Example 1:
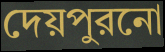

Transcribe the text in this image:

দেয়পুরনো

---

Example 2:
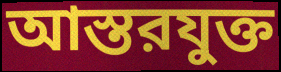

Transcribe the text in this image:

আস্তরযুক্ত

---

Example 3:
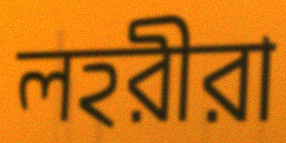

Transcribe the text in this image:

লহরীরা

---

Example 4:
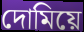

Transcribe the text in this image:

দোমিয়ে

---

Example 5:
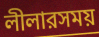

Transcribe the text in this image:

লীলারসময়